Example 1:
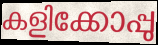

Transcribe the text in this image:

കളിക്കോപ്പു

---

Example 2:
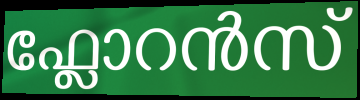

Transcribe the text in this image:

ഫ്ലോറൻസ്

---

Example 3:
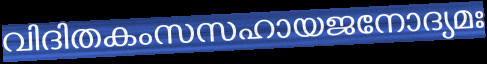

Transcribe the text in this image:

വിദിതകംസസഹായജനോദ്യമഃ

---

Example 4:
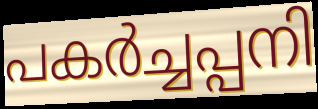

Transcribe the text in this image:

പകർച്ചപ്പനി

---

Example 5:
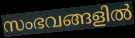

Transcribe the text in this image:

സംഭവങ്ങളിൽ